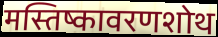
मस्तिष्कावरणशोथ